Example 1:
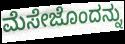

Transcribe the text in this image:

ಮೆಸೇಜೊಂದನ್ನು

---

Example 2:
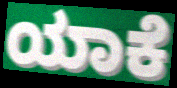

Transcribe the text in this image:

ಯಾಕೆ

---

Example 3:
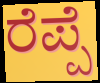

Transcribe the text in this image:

ರೆಪ್ಪೆ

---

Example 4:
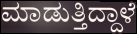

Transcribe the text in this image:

ಮಾಡುತ್ತಿದ್ದಾಳೆ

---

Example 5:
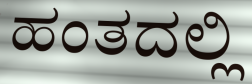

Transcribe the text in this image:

ಹಂತದಲ್ಲಿ